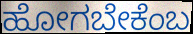
ಹೋಗಬೇಕೆಂಬ